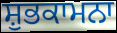
ਸ਼ੁਭਕਾਮਨਾ